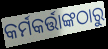
କର୍ମକର୍ତ୍ତାଙ୍କଠାରୁ